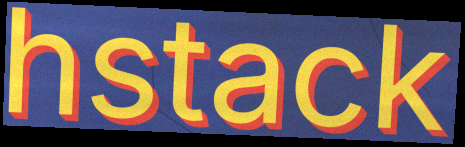
hstack